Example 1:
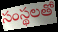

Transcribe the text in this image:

సంస్థలతో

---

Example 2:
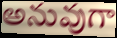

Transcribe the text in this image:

అనువుగా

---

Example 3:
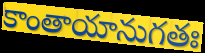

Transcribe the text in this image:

కాంతాయానుగతః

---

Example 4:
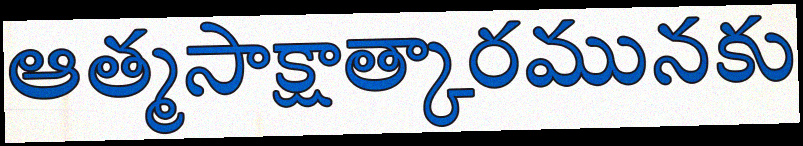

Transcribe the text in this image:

ఆత్మసాక్షాత్కారమునకు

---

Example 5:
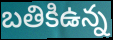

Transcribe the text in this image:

బతికిఉన్న